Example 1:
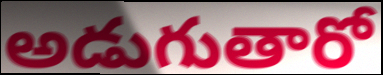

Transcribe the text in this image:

అడుగుతారో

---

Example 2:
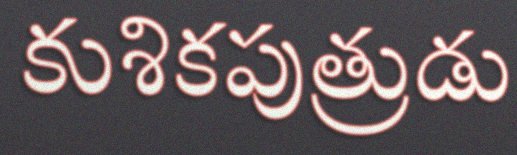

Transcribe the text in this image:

కుశికపుత్రుడు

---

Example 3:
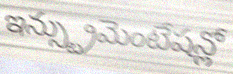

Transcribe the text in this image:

ఇన్స్ట్రుమెంటేషన్లో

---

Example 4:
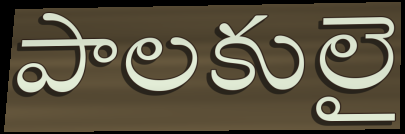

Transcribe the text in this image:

పాలకులై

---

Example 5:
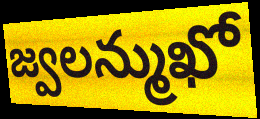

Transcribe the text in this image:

జ్వలన్ముఖో